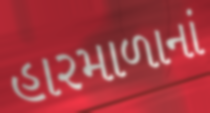
હારમાળાનાં